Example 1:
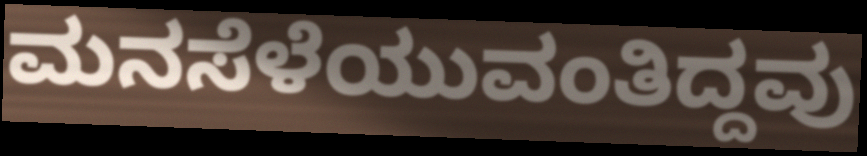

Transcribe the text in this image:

ಮನಸೆಳೆಯುವಂತಿದ್ದವು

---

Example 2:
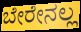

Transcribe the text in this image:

ಬೇರೇನಲ್ಲ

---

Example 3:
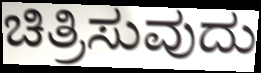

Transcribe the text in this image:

ಚಿತ್ರಿಸುವುದು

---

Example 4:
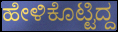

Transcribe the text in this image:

ಹೇಳಿಕೊಟ್ಟಿದ್ದ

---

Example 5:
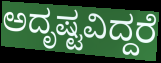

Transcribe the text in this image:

ಅದೃಷ್ಟವಿದ್ದರೆ